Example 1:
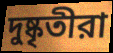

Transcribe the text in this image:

দুষ্কৃতীরা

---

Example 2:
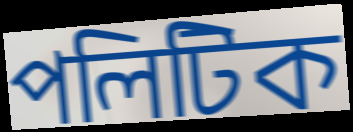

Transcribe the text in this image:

পলিটিক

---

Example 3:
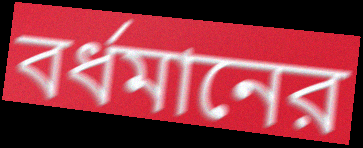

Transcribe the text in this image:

বর্ধমানের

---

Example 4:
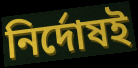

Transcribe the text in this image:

নির্দোষই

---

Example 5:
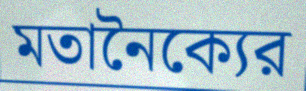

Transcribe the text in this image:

মতানৈক্যের